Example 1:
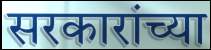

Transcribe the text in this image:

सरकारांच्या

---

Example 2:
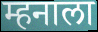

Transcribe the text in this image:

म्हनाला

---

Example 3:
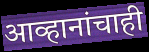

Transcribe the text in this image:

आव्हानांचाही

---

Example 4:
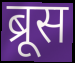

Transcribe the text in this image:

ब्रूस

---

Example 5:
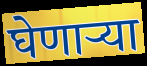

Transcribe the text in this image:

घेणाऱ्या